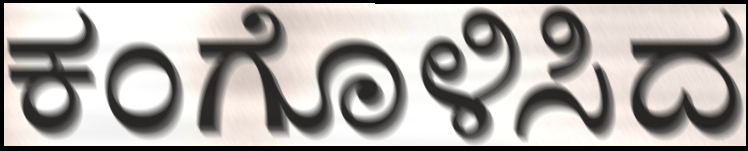
ಕಂಗೊಳಿಸಿದ